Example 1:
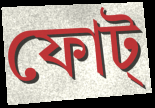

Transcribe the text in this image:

ফোট্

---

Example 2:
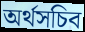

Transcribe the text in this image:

অর্থসচিব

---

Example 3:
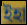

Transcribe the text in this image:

ইহা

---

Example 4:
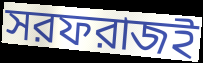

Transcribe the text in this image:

সরফরাজই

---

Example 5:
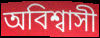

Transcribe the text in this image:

অবিশ্বাসী